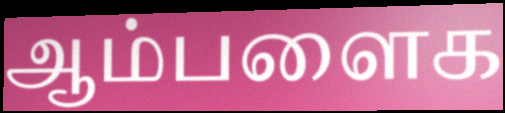
ஆம்பளைக